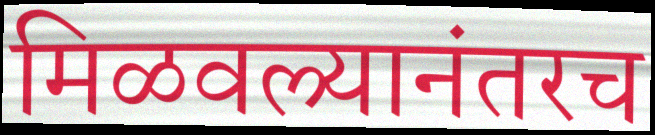
मिळवल्यानंतरच